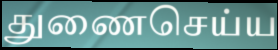
துணைசெய்ய